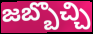
జబ్బొచ్చి